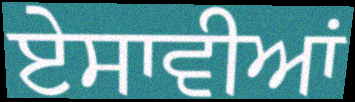
ਏਸਾਵੀਆਂ